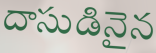
దాసుడినైన